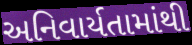
અનિવાર્યતામાંથી